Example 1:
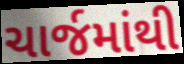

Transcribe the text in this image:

ચાર્જમાંથી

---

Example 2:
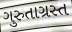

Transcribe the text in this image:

ગુરુતાગ્રસ્ત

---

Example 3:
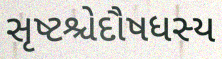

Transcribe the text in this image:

સૃષ્ટશ્ચેદૌષધસ્ય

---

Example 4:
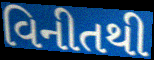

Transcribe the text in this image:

વિનીતથી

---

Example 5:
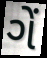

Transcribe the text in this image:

ગેં